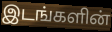
இடங்களின்